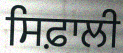
ਸਿਫ਼ਾਲੀ